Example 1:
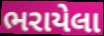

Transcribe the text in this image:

ભરાયેલા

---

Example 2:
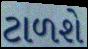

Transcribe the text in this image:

ટાળશે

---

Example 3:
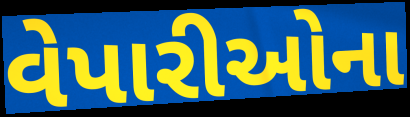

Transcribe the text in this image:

વેપારીઓના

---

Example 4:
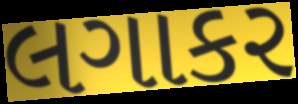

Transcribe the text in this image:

લગાકર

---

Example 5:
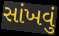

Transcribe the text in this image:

સાંખવું